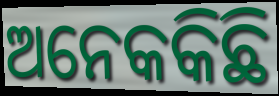
ଅନେକକିଛି